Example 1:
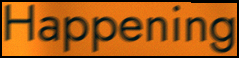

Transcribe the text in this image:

Happening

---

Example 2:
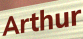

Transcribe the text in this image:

Arthur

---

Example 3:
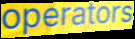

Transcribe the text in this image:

operators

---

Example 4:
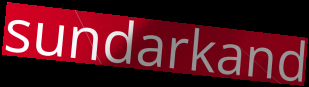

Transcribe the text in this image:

sundarkand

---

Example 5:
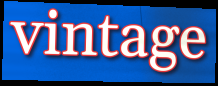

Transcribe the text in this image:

vintage